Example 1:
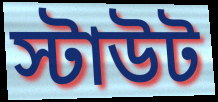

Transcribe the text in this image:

স্টাউট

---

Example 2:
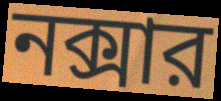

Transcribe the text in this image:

নক্সার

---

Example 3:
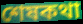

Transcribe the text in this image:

শেষকথা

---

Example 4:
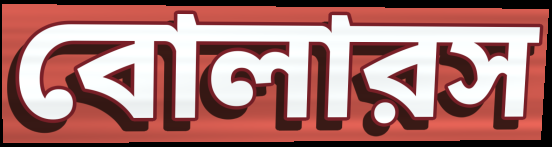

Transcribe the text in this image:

বোলারস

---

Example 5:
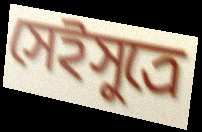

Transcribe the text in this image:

সেইসুত্রে